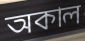
অকাল